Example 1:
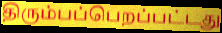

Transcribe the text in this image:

திரும்பப்பெறப்பட்டது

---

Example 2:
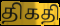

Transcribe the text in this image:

திகதி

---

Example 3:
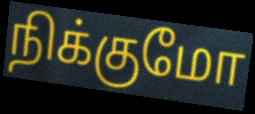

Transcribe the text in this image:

நிக்குமோ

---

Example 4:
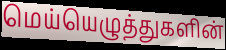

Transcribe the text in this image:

மெய்யெழுத்துகளின்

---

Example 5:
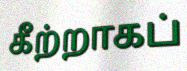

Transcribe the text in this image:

கீற்றாகப்